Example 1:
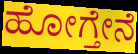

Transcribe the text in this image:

ಹೋಗ್ತೇನೆ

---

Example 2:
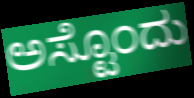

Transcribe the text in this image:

ಅಸ್ಟೊಂದು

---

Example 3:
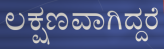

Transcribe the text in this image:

ಲಕ್ಷಣವಾಗಿದ್ದರೆ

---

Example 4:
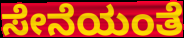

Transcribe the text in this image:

ಸೇನೆಯಂತೆ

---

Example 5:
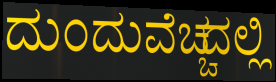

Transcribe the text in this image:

ದುಂದುವೆಚ್ಚದಲ್ಲಿ